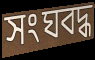
সংঘবদ্ধ